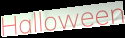
Halloween